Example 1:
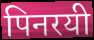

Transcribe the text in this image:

पिनरयी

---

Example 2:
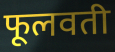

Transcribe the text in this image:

फूलवती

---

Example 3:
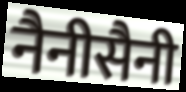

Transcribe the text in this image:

नैनीसैनी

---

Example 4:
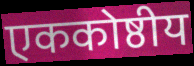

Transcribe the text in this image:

एककोष्ठीय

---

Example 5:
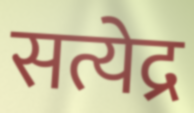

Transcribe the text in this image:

सत्येद्र